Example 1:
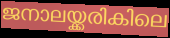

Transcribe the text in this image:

ജനാലയ്ക്കരികിലെ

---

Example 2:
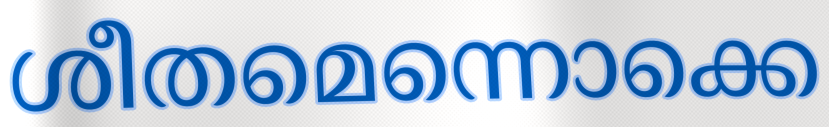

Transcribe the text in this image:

ശീതമെന്നൊക്കെ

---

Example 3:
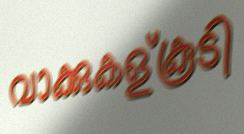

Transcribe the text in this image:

വാക്കുകള്കൂടി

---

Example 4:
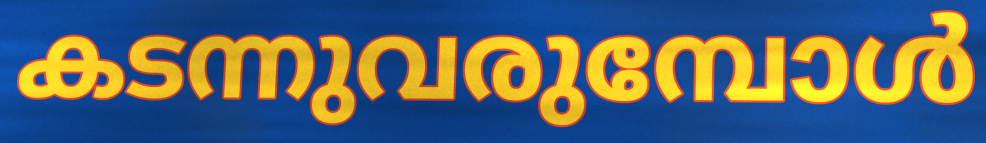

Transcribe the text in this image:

കടന്നുവരുമ്പോൾ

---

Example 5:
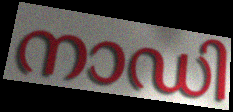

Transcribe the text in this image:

നാഡി